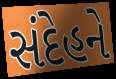
સંદેહને